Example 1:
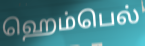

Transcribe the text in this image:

ஹெம்பெல்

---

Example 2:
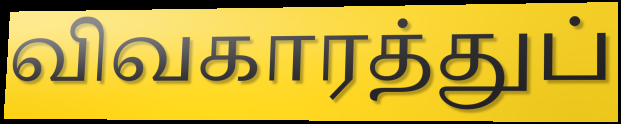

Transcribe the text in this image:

விவகாரத்துப்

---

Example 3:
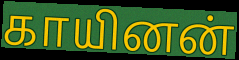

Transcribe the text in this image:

காயினன்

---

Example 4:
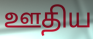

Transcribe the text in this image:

ஊதிய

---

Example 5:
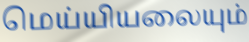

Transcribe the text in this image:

மெய்யியலையும்